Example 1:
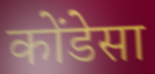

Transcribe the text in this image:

कोंडेसा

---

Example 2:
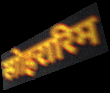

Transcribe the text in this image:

सोहरारिम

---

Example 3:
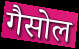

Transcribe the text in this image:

गैसोल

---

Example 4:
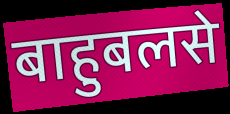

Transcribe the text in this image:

बाहुबलसे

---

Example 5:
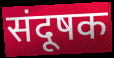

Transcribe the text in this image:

संदूषक